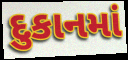
દુકાનમાં